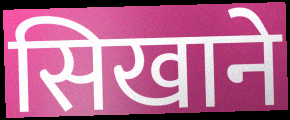
सिखाने